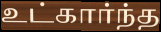
உட்கார்ந்த